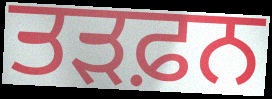
ਤੜਫ਼ਨ